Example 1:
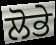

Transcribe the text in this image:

ਲੋਭੇ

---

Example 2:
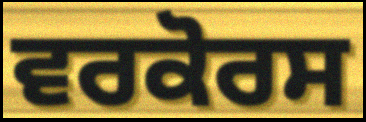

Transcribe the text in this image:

ਵਰਕੋਰਸ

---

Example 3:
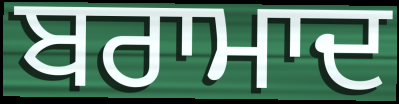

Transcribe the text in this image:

ਬਰਾਮਾਦ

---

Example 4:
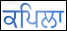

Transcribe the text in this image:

ਕਪਿਲਾ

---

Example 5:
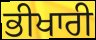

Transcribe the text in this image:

ਭੀਖਾਰੀ